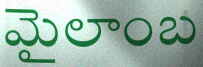
మైలాంబ